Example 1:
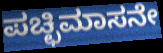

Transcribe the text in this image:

ಪಚ್ಛಿಮಾಸನೇ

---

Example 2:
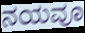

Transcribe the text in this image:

ನಯವೂ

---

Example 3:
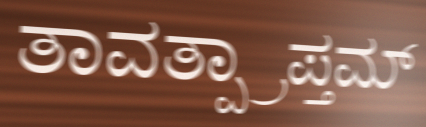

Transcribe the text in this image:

ತಾವತ್ಪ್ರಾಪ್ತಮ್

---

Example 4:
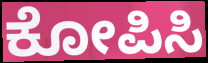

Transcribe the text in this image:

ಕೋಪಿಸಿ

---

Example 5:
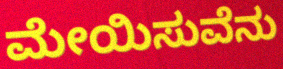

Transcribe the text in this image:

ಮೇಯಿಸುವೆನು